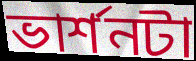
ভার্শনটা